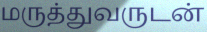
மருத்துவருடன்